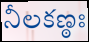
నీలకణ్ఠః